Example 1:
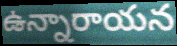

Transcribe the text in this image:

ఉన్నారాయన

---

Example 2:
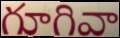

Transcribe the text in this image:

గూగివా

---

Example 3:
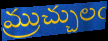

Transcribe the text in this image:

మ్రుచ్చులఁ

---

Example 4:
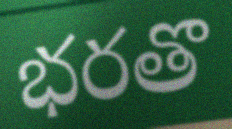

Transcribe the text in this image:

భరతొ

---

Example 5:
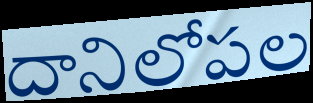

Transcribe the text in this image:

దానిలోపల